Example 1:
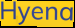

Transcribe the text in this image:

Hyena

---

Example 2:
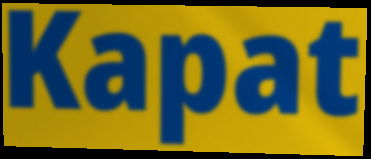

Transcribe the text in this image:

Kapat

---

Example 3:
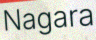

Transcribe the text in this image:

Nagara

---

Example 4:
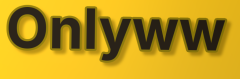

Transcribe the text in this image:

Onlyww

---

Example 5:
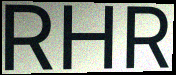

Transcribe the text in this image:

RHR